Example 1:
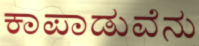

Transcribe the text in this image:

ಕಾಪಾಡುವೆನು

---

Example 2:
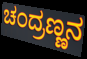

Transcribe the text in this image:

ಚಂದ್ರಣ್ಣನ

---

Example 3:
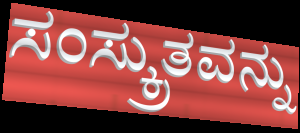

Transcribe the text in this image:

ಸಂಸ್ಕ್ರುತವನ್ನು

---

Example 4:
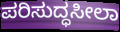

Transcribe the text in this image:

ಪರಿಸುದ್ಧಸೀಲಾ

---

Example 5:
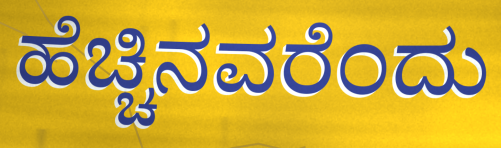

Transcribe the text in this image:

ಹೆಚ್ಚಿನವರೆಂದು